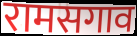
रामसगाव